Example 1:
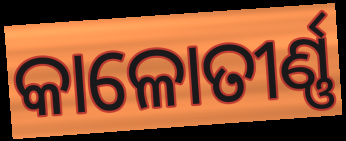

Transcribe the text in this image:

କାଳୋତୀର୍ଣ୍ଣ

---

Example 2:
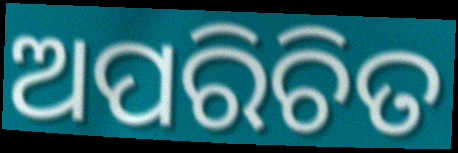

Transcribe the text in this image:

ଅପରିଚିତ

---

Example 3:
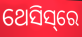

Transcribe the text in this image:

ଥେସିସ୍‌ରେ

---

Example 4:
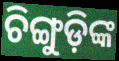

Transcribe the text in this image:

ଚିଙ୍ଗୁଡ଼ିଙ୍କ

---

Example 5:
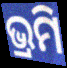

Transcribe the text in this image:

ଭ୍ରମି